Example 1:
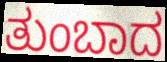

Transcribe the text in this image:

ತುಂಬಾದ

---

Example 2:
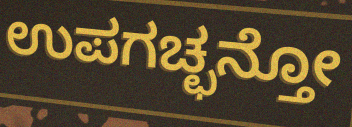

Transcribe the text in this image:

ಉಪಗಚ್ಛನ್ತೋ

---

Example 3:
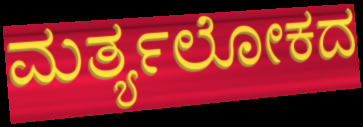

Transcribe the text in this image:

ಮರ್ತ್ಯಲೋಕದ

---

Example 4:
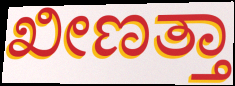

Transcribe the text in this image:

ಖೀಣತ್ತಾ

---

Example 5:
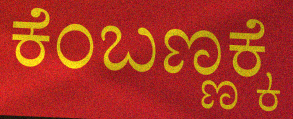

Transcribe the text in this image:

ಕೆಂಬಣ್ಣಕ್ಕೆ